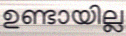
ഉണ്ടായില്ല